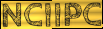
NCIIPC